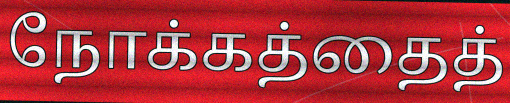
நோக்கத்தைத்